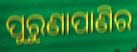
ପୁରୁଣାପାଣିର